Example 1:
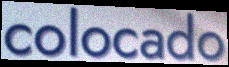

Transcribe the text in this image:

colocado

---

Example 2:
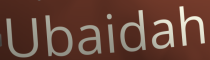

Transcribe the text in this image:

Ubaidah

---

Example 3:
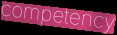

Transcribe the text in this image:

competency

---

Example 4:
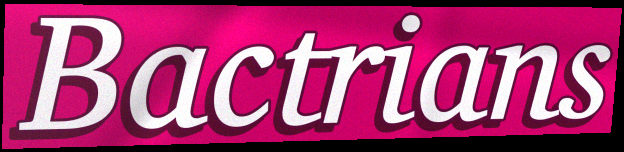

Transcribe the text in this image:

Bactrians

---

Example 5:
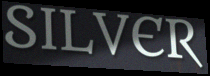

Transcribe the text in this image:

SILVER